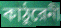
কাঠুরেনী